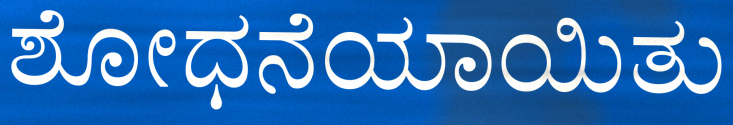
ಶೋಧನೆಯಾಯಿತು